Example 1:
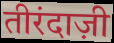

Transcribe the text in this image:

तीरंदाज़ी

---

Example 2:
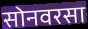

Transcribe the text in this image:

सोनवरसा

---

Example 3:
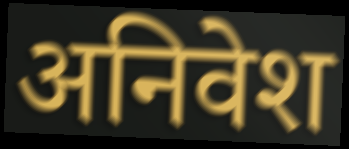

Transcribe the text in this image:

अनिवेश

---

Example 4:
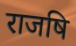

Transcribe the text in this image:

राजषि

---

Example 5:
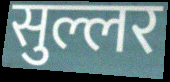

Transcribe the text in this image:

सुल्लर